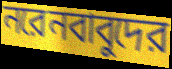
নরেনবাবুদের